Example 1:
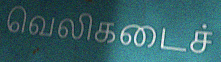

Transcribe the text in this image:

வெலிகடைச்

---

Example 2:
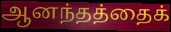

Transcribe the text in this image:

ஆனந்தத்தைக்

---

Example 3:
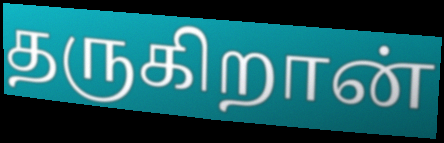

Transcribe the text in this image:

தருகிறான்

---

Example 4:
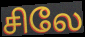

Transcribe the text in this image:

சிலே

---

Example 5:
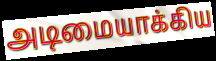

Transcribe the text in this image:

அடிமையாக்கிய